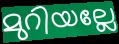
മുറിയല്ലേ